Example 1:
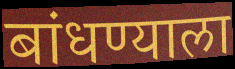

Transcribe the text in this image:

बांधण्याला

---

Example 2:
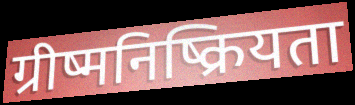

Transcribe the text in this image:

ग्रीष्मनिष्क्रियता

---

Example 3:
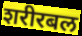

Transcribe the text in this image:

शरीरबल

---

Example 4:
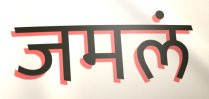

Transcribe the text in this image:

जमलं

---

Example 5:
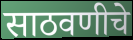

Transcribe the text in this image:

साठवणीचे